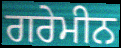
ਗਰੇਮੀਨ